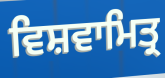
ਵਿਸ਼ਵਾਮਿਤ੍ਰ